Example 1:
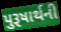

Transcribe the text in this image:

પુરૂષાર્થની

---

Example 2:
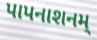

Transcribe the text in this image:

પાપનાશનમ્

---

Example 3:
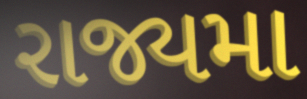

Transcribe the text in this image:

રાજ્યમા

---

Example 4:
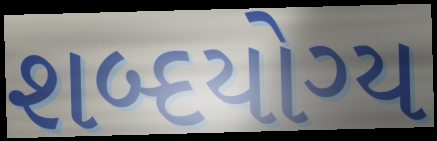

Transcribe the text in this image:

શબ્દયોગ્ય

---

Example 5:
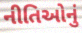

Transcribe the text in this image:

નીતિઓનું